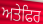
ਅਤੇਫਿਰ